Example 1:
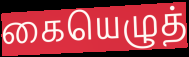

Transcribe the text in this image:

கையெழுத்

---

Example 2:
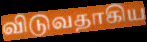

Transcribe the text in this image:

விடுவதாகிய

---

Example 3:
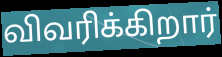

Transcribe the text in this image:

விவரிக்கிறார்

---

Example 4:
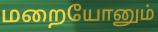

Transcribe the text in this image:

மறையோனும்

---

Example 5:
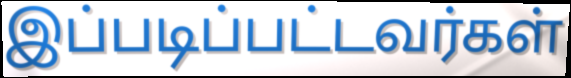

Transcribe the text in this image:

இப்படிப்பட்டவர்கள்